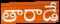
తారాడే